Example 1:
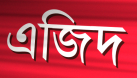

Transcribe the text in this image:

এজিদ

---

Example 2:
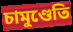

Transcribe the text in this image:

চামুণ্ডেতি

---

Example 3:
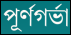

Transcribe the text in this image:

পূর্ণগর্ভা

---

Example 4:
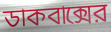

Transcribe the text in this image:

ডাকবাক্সের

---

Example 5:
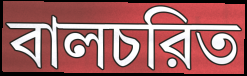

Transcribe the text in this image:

বালচরিত